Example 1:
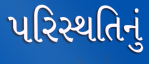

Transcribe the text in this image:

પરિસ્થતિનું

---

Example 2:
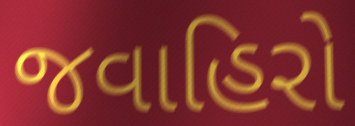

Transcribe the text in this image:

જવાહિરો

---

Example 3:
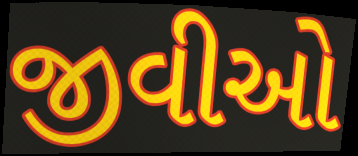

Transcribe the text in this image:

જીવીઓ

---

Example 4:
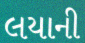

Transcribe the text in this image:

લયાની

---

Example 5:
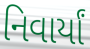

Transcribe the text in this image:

નિવાર્યાં